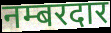
नम्बरदार